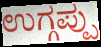
ಉಗ್ಗಪ್ಪು